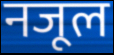
नजूल